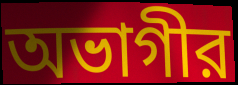
অভাগীর